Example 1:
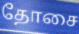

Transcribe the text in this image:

தோசை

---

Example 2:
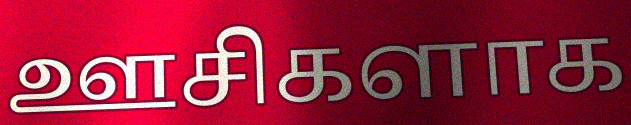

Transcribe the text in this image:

ஊசிகளாக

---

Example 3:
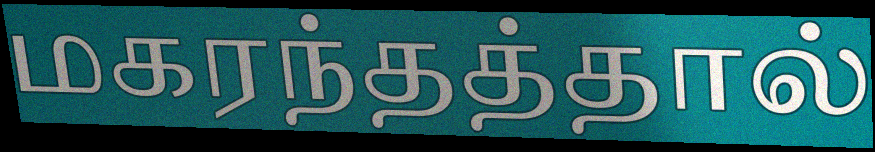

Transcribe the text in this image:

மகரந்தத்தால்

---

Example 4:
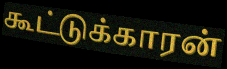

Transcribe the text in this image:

கூட்டுக்காரன்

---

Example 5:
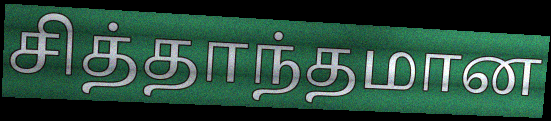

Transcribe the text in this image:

சித்தாந்தமான